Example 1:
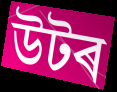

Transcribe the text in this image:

উটৰ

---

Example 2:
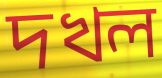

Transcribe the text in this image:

দখল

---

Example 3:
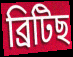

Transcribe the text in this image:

ব্ৰিটিছ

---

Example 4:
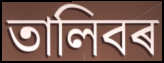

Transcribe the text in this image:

তালিবৰ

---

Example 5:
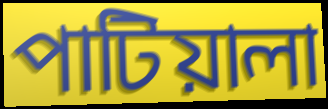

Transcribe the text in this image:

পাটিয়ালা